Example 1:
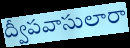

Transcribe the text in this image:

ద్వీపవాసులారా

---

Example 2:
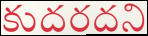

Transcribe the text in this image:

కుదరదని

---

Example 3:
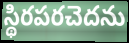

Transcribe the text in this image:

స్థిరపరచెదను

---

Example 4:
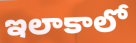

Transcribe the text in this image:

ఇలాకాలో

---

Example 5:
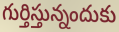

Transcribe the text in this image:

గుర్తిస్తున్నందుకు